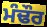
ਮੰਢੌਰ